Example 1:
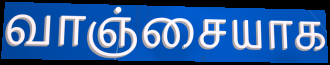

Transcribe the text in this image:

வாஞ்சையாக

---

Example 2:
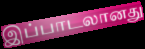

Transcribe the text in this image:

இப்பாடலானது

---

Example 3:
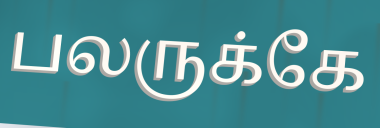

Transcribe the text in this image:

பலருக்கே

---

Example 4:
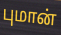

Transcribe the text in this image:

புமான்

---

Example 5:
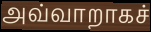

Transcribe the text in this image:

அவ்வாறாகச்